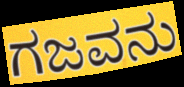
ಗಜವನು